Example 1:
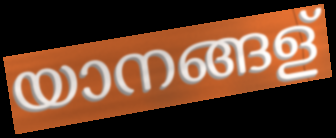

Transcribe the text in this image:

യാനങ്ങള്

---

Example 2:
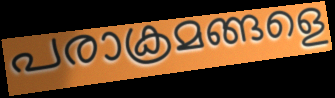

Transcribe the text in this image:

പരാക്രമങ്ങളെ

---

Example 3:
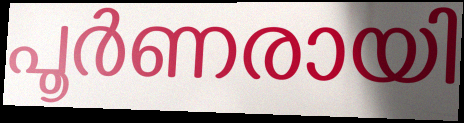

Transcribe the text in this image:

പൂർണരായി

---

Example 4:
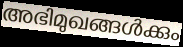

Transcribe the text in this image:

അഭിമുഖങ്ങൾക്കും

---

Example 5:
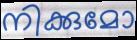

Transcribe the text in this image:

നിക്കുമോ